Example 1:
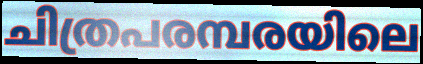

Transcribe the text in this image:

ചിത്രപരമ്പരയിലെ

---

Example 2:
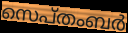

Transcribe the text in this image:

സെപ്തംബർ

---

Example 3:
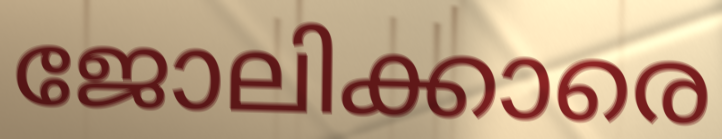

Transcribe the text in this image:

ജോലിക്കാരെ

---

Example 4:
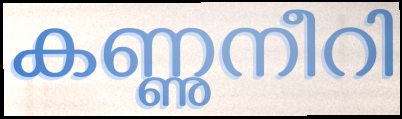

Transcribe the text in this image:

കണ്ണുനീറി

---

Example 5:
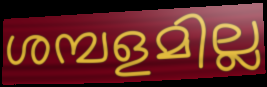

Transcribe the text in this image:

ശമ്പളമില്ല